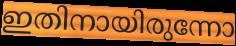
ഇതിനായിരുന്നോ